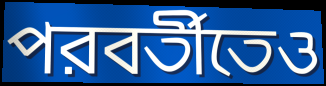
পরবর্তীতেও